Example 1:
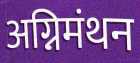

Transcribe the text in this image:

अग्निमंथन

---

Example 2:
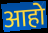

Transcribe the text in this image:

आहो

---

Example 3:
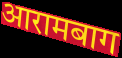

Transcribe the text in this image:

आरामबाग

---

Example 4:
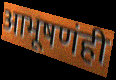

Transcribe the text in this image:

आभूषणंही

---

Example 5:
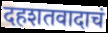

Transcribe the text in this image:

दहशतवादाचं